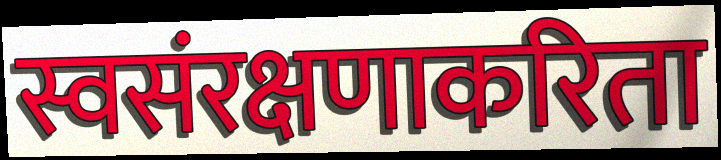
स्वसंरक्षणाकरिता